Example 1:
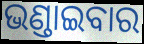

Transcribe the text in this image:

ଭଣ୍ଡାଇବାର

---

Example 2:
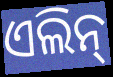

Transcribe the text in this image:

ଏଲିନ୍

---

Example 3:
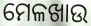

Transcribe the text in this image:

ମେଳଖାଉ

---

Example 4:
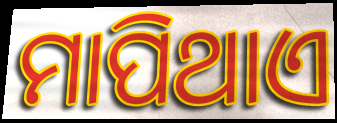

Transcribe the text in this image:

ମାପିଥାଏ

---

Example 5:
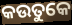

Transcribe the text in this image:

କଉତୁକେ